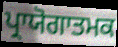
ਪ੍ਰਾਯੋਗਾਤਮਕ